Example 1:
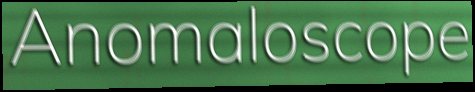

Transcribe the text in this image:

Anomaloscope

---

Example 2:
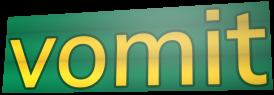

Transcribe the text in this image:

vomit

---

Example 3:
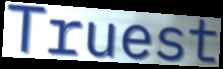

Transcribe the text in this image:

Truest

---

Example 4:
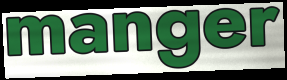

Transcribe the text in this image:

manger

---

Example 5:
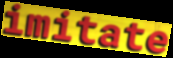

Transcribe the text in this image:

imitate